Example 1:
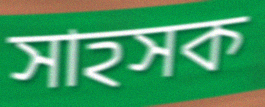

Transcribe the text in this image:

সাহসক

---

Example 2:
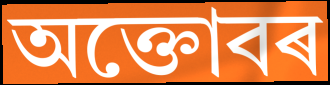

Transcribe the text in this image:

অক্তোবৰ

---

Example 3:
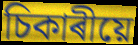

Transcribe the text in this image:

চিকাৰীয়ে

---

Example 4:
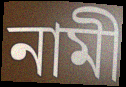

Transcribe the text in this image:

নামী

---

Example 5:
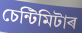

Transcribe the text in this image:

চেন্টিমিটাৰ